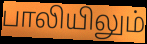
பாலியிலும்